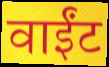
वाईंट